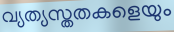
വ്യത്യസ്തതകളെയും